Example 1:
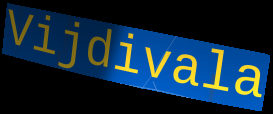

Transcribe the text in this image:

Vijdivala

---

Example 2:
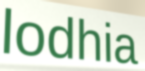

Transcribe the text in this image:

lodhia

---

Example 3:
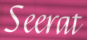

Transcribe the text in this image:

Seerat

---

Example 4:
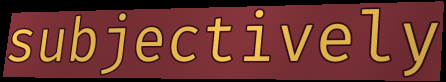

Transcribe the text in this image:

subjectively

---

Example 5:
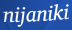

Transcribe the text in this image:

nijaniki